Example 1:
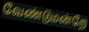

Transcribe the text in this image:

வேண்டுமன்றே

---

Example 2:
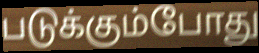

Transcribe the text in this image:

படுக்கும்போது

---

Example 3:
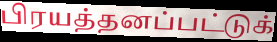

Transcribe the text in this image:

பிரயத்தனப்பட்டுக்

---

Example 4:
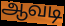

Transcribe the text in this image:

ஆவடி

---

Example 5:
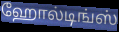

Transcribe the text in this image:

ஹோல்டிங்ஸ்